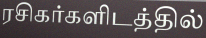
ரசிகர்களிடத்தில்